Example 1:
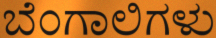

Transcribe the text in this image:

ಬೆಂಗಾಲಿಗಳು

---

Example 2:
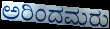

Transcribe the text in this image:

ಅರಿಂದಮರು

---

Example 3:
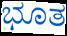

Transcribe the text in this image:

ಭೂತ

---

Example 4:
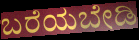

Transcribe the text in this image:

ಬರೆಯಬೇಡಿ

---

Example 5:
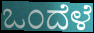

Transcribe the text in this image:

ಒಂದೆಳೆ